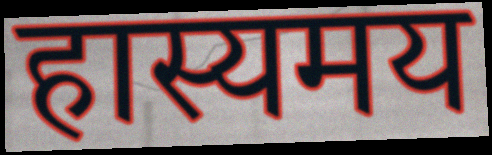
हास्यमय